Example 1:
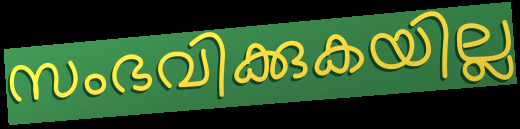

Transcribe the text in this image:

സംഭവിക്കുകയില്ല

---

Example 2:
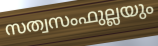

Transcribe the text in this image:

സത്വസംഫുല്ലയും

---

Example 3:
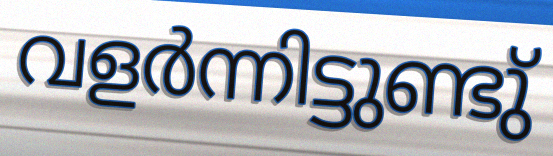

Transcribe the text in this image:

വളർന്നിട്ടുണ്ടു്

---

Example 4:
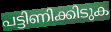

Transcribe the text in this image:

പട്ടിണിക്കിടുക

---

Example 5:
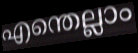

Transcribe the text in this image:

എന്തെല്ലാം